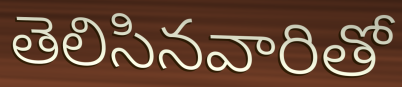
తెలిసినవారితో